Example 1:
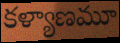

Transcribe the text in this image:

కళ్యాణమూ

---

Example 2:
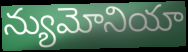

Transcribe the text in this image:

న్యుమోనియా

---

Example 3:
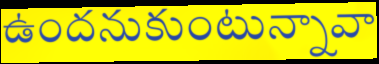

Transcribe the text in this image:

ఉందనుకుంటున్నావా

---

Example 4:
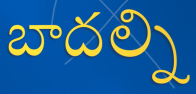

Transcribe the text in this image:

బాదల్ని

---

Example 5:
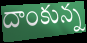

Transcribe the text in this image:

దాంకున్న